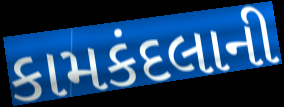
કામકંદલાની